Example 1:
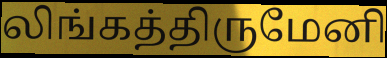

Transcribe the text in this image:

லிங்கத்திருமேனி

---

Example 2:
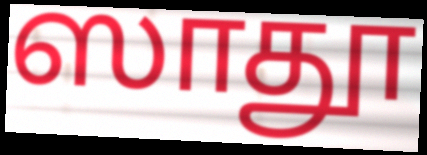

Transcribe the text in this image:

ஸாதூ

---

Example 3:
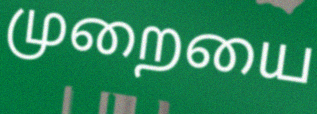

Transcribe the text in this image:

முறையை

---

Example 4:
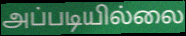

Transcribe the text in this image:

அப்படியில்லை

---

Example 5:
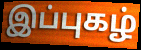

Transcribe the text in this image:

இப்புகழ்